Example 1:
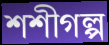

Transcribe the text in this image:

শশীগল্প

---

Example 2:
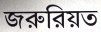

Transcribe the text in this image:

জরুরিয়ত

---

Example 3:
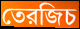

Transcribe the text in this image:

তেরজিচ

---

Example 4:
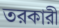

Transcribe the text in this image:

তরকারী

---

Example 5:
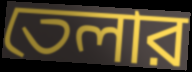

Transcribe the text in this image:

তেলার